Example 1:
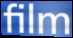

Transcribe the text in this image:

film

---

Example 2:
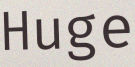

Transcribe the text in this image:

Huge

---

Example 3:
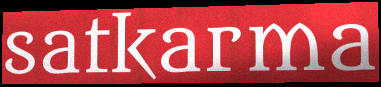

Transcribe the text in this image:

satkarma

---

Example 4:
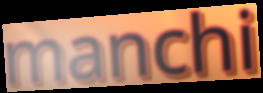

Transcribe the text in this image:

manchi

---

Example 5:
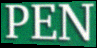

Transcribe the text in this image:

PEN